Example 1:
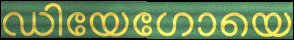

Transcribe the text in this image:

ഡിയേഗോയെ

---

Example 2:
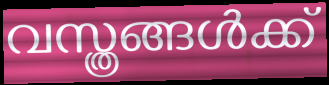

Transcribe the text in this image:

വസ്ത്രങ്ങൾക്ക്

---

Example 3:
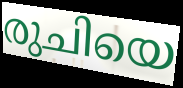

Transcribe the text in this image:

രുചിയെ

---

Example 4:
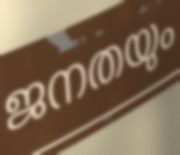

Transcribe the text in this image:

ജനതയും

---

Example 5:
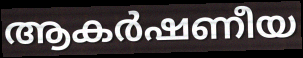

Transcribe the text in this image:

ആകർഷണീയ